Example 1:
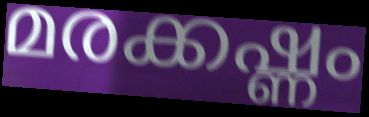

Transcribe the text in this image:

മരക്കഷ്ണം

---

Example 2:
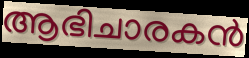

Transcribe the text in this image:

ആഭിചാരകൻ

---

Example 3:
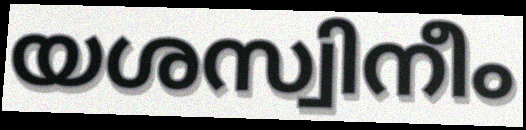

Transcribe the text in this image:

യശസ്വിനീം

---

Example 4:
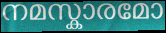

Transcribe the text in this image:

നമസ്കാരമോ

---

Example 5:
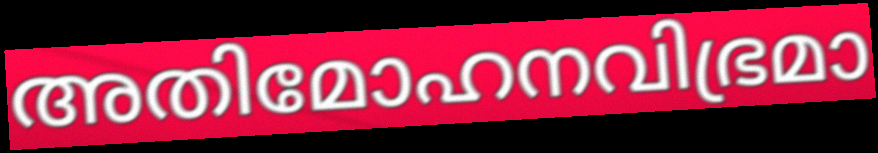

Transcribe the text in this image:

അതിമോഹനവിഭ്രമാ